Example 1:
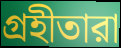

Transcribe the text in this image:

গ্রহীতারা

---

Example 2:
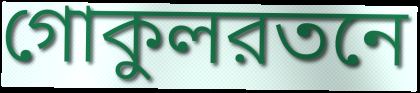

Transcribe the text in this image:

গোকুলরতনে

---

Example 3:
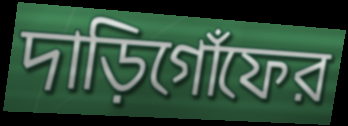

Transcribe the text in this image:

দাড়িগোঁফের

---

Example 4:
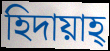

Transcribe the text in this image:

হিদায়াহ্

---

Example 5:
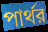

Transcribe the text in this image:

পার্থর